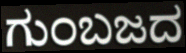
ಗುಂಬಜದ